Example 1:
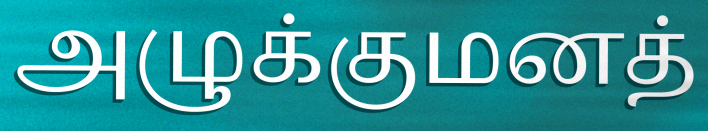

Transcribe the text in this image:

அழுக்குமனத்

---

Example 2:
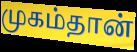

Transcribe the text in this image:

முகம்தான்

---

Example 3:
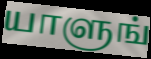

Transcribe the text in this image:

யாளுங்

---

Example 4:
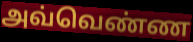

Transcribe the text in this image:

அவ்வெண்ண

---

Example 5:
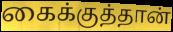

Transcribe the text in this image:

கைக்குத்தான்